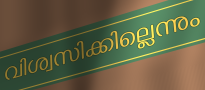
വിശ്വസിക്കില്ലെന്നും